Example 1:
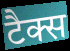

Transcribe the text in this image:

टैक्‍स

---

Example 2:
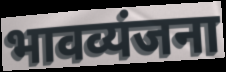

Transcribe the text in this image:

भावव्यंजना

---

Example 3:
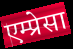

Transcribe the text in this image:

एम्प्रेसा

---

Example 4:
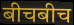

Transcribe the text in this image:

बीचबीच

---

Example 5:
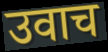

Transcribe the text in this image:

उवाच